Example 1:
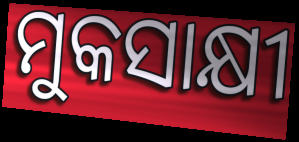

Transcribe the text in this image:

ମୁକସାକ୍ଷୀ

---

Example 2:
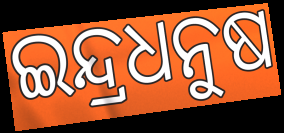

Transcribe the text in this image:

ଇନ୍ଦ୍ରଧନୁଷ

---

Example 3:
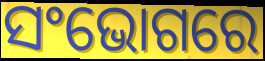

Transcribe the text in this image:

ସଂଭୋଗରେ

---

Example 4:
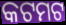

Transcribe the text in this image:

କଟମଟ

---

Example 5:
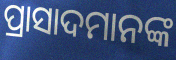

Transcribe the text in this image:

ପ୍ରାସାଦମାନଙ୍କ